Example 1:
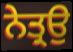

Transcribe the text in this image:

ਨੇਤ੍ਰਉ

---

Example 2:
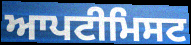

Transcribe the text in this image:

ਆਪਟੀਮਿਸਟ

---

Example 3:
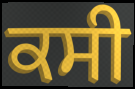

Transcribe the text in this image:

ਕਸੀ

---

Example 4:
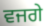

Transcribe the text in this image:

ਵਜਗੇ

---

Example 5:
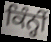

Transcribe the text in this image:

ਕਿੰਨ੍ਹੀਂ